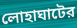
লোহাঘাটের